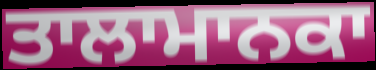
ਤਾਲਾਮਾਨਕਾ